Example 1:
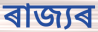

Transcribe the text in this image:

ৰাজ্যৰ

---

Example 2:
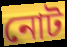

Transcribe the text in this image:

নোট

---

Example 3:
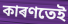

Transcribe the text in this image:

কাৰণতেই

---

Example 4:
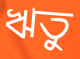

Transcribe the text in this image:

ঋতু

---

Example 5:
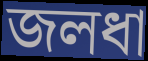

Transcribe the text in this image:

জলধা